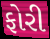
ફોરી